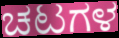
ಚಟಗಳ